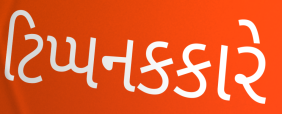
ટિપ્પનકકારે